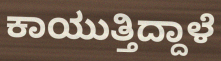
ಕಾಯುತ್ತಿದ್ದಾಳೆ